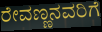
ರೇವಣ್ಣನವರಿಗೆ